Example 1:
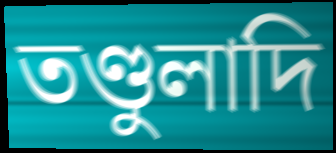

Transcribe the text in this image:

তণ্ডুলাদি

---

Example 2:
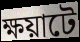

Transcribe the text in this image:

ক্ষয়াটে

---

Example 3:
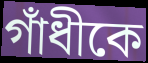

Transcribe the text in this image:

গাঁধীকে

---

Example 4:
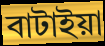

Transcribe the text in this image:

বাটাইয়া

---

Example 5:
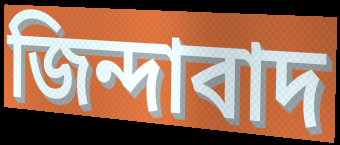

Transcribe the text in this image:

জিন্দাবাদ